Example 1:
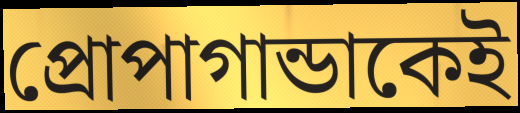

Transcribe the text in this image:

প্রোপাগান্ডাকেই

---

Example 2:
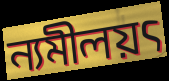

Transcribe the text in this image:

ন্যমীলয়ৎ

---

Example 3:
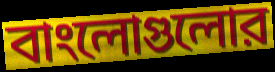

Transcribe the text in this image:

বাংলোগুলোর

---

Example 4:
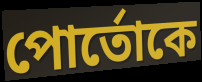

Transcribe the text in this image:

পোর্তোকে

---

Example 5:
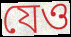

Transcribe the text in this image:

যেও